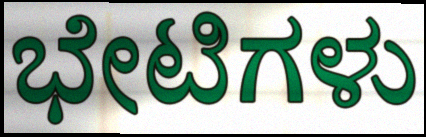
ಭೇಟಿಗಳು